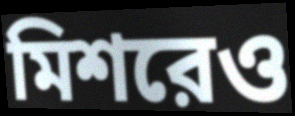
মিশরেও